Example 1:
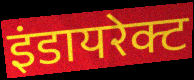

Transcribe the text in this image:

इंडायरेक्ट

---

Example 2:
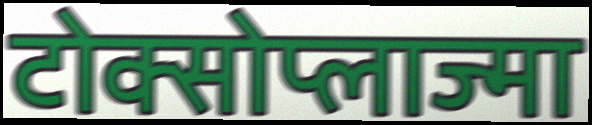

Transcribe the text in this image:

टोक्सोप्लाज्मा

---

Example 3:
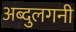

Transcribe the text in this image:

अब्दुलगनी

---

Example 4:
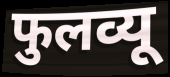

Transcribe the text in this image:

फुलव्यू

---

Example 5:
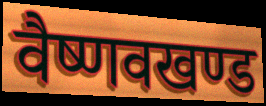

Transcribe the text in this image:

वैष्णवखण्ड